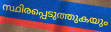
സ്ഥിരപ്പെടുത്തുകയും